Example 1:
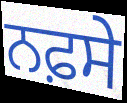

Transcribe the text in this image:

ਨਫ਼ਸੇ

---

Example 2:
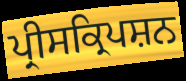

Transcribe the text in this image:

ਪ੍ਰੀਸਕ੍ਰਿਪਸ਼ਨ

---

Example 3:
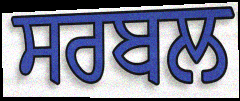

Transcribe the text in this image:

ਸਰਬਲ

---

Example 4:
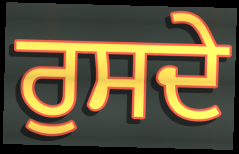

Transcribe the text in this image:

ਰੁਸਦੇ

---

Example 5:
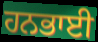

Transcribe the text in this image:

ਹਨਭਾਈ